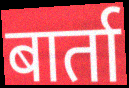
बार्ता